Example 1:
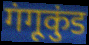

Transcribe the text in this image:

गंगूकुंड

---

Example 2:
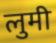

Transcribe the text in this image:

लुमी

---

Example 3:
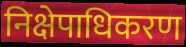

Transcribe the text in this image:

निक्षेपाधिकरण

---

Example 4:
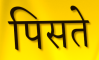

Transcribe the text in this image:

पिसते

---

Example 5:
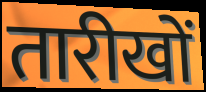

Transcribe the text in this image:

तारीखों